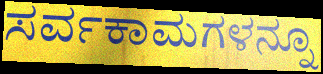
ಸರ್ವಕಾಮಗಳನ್ನೂ